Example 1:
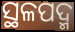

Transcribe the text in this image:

ସ୍ଥଳପଦ୍ମ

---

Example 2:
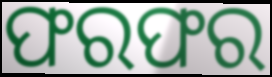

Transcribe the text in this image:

ଫରଫର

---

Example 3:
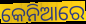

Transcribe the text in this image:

କେନିଆରେ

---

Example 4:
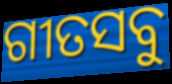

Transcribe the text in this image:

ଗୀତସବୁ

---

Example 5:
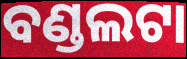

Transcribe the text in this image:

ବଣ୍ଡଲଟା